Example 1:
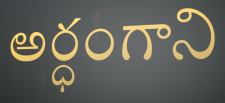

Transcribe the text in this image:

అర్ధంగాని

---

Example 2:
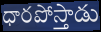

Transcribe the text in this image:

ధారపోస్తాడు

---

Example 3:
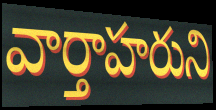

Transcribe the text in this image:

వార్తాహరుని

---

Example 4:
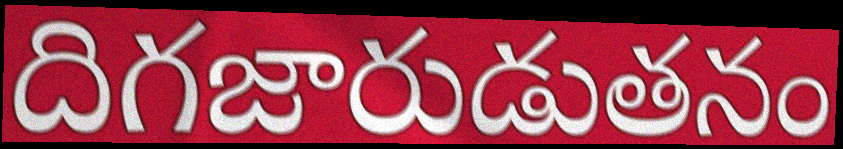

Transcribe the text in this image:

దిగజారుడుతనం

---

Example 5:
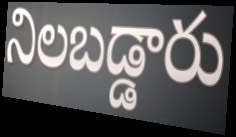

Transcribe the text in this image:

నిలబడ్డారు